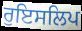
ਰੁਇਸਲਿਪ